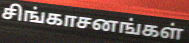
சிங்காசனங்கள்